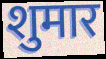
शुमार